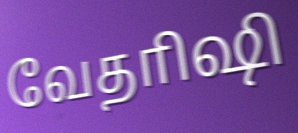
வேதரிஷி